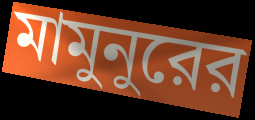
মামুনুরের